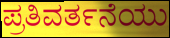
ಪ್ರತಿವರ್ತನೆಯು